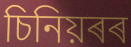
চিনিয়ৰৰ